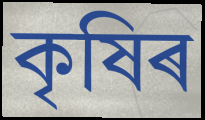
কৃষিৰ